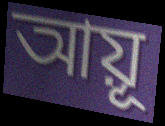
আয়ূ